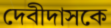
দেবীদাসকে